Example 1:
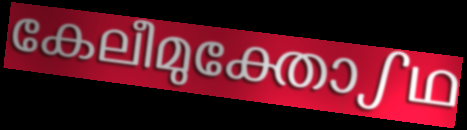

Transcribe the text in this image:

കേലീമുക്തോഽഥ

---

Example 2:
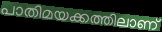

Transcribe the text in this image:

പാതിമയക്കത്തിലാണ്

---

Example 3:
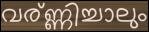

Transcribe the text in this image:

വര്ണ്ണിച്ചാലും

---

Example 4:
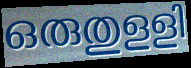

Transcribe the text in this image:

ഒരുതുളളി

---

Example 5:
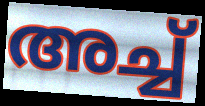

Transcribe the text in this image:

അച്ച്